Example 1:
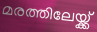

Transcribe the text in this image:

മരത്തിലേയ്ക്ക്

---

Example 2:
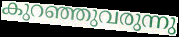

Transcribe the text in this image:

കുറഞ്ഞുവരുന്നു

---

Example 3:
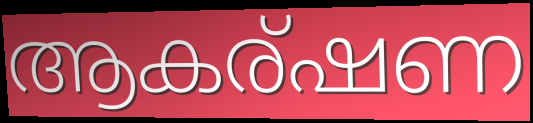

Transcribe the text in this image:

ആകര്ഷണ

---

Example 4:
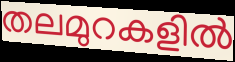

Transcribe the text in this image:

തലമുറകളിൽ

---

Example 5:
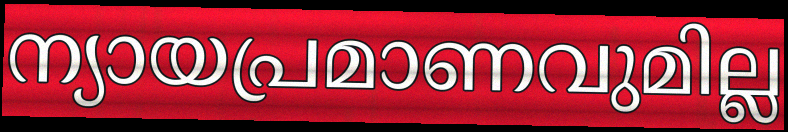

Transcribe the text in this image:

ന്യായപ്രമാണവുമില്ല